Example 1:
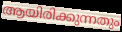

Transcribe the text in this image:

ആയിരിക്കുന്നതും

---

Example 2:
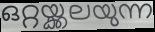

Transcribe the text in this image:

ഒറ്റയ്ക്കലയുന്ന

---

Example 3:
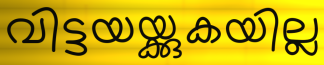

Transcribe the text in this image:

വിട്ടയയ്ക്കുകയില്ല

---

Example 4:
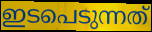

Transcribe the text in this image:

ഇടപെടുന്നത്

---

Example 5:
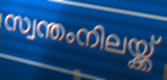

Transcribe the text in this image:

സ്വന്തംനിലയ്ക്ക്